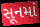
સૂનમાં